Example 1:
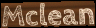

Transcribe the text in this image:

Mclean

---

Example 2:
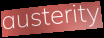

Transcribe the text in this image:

austerity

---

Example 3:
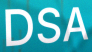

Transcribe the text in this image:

DSA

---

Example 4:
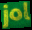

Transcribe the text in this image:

jol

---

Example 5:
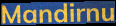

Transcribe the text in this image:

Mandirnu